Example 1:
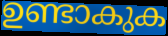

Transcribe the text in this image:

ഉണ്ടാകുക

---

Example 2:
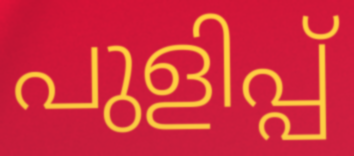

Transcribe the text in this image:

പുളിപ്പ്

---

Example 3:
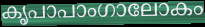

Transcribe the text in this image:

കൃപാപാംഗാലോകം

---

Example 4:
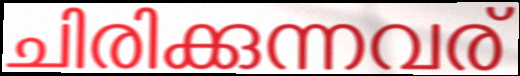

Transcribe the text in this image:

ചിരിക്കുന്നവര്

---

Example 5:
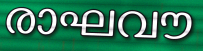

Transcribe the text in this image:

രാഘവൗ